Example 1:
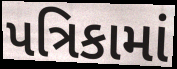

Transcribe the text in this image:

પત્રિકામાં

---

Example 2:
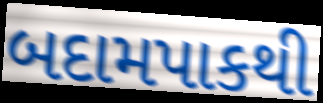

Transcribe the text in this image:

બદામપાકથી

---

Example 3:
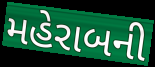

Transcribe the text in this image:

મહેરાબની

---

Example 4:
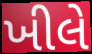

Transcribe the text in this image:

ખીલે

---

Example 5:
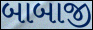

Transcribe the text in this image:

બાબાજી